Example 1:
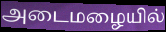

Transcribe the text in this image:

அடைமழையில்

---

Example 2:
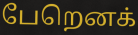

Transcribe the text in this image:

பேறெனக்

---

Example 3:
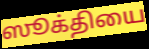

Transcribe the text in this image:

ஸூக்தியை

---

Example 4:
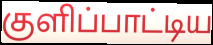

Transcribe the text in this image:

குளிப்பாட்டிய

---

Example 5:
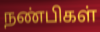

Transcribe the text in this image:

நண்பிகள்